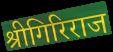
श्रीगिरिराज